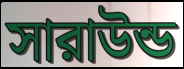
সারাউন্ড